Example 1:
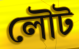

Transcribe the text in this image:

লৌট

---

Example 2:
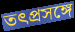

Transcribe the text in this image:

তৎপ্রসঙ্গে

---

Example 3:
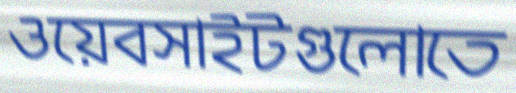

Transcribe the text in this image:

ওয়েবসাইটগুলোতে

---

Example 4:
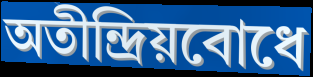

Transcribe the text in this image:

অতীন্দ্রিয়বোধে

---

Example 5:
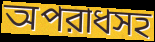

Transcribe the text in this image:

অপরাধসহ